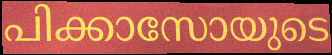
പിക്കാസോയുടെ